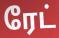
ரேட்